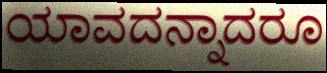
ಯಾವದನ್ನಾದರೂ